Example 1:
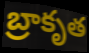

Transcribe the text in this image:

బ్రాకృత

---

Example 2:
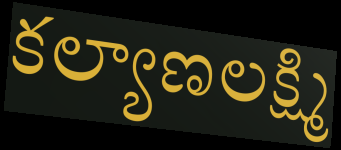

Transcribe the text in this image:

కల్యాణలక్ష్మి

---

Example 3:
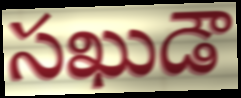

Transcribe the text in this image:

సఖుడౌ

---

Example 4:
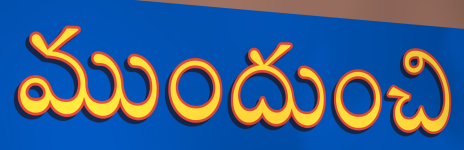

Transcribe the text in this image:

ముందుంచి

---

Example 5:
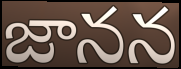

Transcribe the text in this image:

జానన